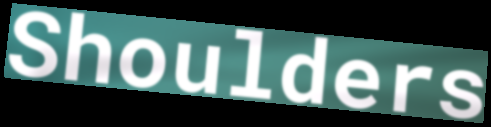
Shoulders